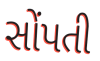
સોંપતી